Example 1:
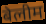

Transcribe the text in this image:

बेलीम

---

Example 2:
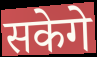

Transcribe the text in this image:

सकेगे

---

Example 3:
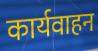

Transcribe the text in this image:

कार्यवाहन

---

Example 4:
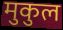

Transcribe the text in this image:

मुकुल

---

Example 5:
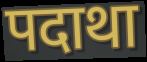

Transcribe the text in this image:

पदाथा